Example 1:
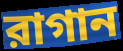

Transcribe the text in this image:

রাগান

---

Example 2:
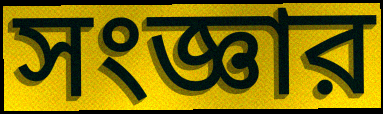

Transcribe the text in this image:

সংজ্ঞার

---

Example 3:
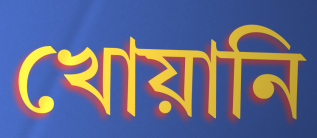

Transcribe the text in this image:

খোয়ানি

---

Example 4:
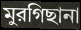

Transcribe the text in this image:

মুরগিছানা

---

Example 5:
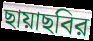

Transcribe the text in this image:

ছায়াছবির